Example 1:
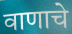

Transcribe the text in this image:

वाणाचे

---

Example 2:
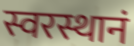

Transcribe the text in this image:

स्वरस्थानं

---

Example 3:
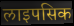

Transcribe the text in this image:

लाइपसिक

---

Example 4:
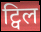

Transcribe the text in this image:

ट्विल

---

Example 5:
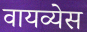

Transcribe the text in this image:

वायव्येस